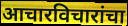
आचारविचारांचा